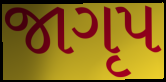
જાગૃપ